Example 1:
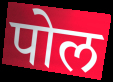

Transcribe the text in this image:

पोल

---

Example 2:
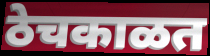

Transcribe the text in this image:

ठेचकाळत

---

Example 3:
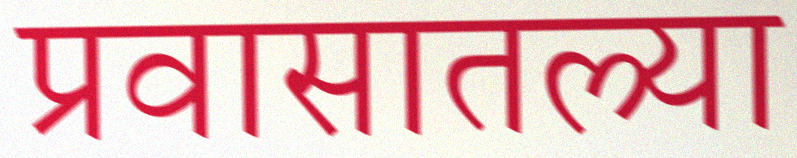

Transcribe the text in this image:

प्रवासातल्या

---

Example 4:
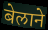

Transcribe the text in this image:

बेलाने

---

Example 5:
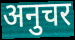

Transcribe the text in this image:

अनुचर